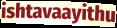
ishtavaayithu